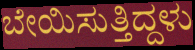
ಬೇಯಿಸುತ್ತಿದ್ದಳು